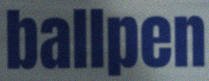
ballpen